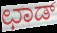
ಛಾಡ್